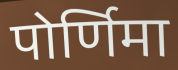
पोर्णिमा